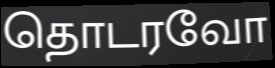
தொடரவோ